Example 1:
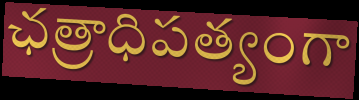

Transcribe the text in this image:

ఛత్రాధిపత్యంగా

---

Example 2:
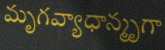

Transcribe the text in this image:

మృగవ్యాధాన్మృగా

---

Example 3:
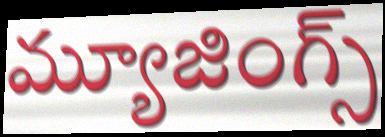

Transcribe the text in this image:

మ్యూజింగ్స్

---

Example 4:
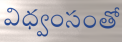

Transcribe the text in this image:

విధ్వంసంతో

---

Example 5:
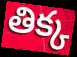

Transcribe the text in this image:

తిక్క